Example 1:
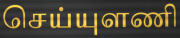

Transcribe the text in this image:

செய்யுளணி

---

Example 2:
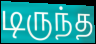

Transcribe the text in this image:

டிருந்த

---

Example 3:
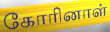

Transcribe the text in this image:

கோரினாள்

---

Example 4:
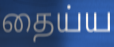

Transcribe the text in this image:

தைய்ய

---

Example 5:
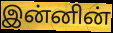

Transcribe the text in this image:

இன்னின்